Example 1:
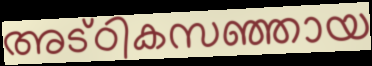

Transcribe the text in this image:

അട്ഠികസഞ്ഞായ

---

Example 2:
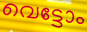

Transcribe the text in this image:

വെട്ടോം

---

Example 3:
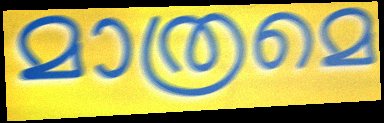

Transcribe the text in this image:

മാത്രമെ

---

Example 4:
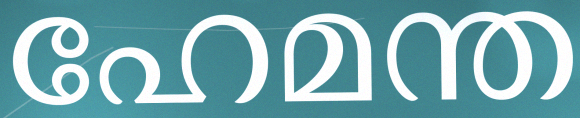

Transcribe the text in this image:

ഹേമന്ത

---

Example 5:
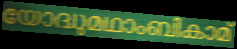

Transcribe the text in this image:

യോദ്ധുമഥാംബികാമ്